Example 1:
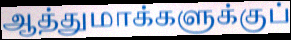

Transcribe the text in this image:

ஆத்துமாக்களுக்குப்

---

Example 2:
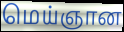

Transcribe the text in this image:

மெய்ஞான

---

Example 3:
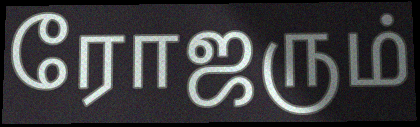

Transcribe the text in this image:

ரோஜரும்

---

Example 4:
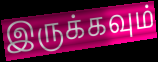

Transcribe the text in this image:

இருக்கவும்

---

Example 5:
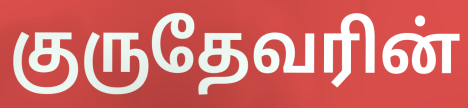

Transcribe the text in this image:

குருதேவரின்